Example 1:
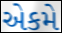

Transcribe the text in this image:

એકમે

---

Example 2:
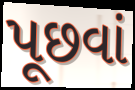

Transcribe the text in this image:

પૂછવાં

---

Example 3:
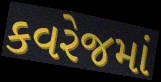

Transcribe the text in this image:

કવરેજમાં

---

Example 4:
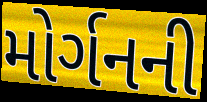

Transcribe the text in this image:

મોર્ગનની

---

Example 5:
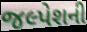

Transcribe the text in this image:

જલ્પેશની